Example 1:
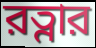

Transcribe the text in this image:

রত্নার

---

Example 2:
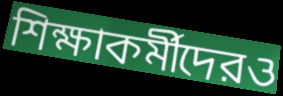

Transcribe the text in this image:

শিক্ষাকর্মীদেরও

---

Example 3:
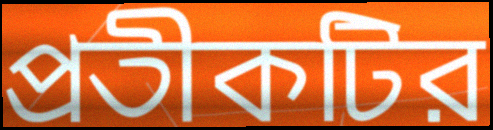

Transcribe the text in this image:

প্রতীকটির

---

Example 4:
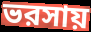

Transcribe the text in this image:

ভরসায়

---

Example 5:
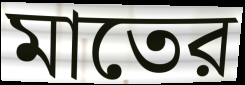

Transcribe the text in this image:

মাতের